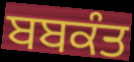
ਬਬਕੰਤ